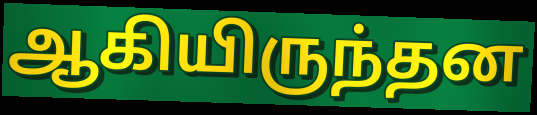
ஆகியிருந்தன